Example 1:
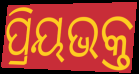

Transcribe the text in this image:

ପ୍ରିୟଭକ୍ତ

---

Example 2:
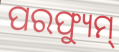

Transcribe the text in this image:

ପରଫ୍ୟୁମ୍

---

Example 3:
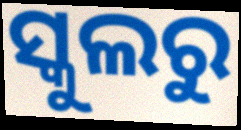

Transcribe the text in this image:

ସ୍କୁଲରୁ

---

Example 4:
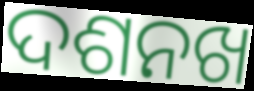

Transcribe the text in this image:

ଦଶନଖ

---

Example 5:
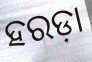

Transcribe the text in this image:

ହରଡ଼ା